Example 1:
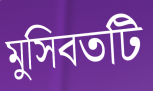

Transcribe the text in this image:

মুসিবতটি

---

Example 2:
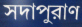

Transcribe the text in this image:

সদাপুরাণ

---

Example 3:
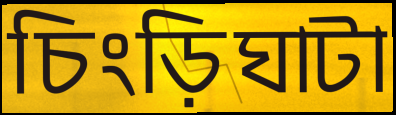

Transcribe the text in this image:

চিংড়িঘাটা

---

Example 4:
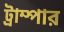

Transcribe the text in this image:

ট্রাম্পার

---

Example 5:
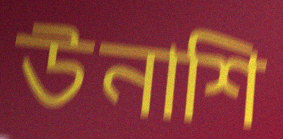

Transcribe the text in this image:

উনাশি